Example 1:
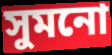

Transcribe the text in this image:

সুমনো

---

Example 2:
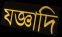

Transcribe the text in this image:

যজ্ঞাদি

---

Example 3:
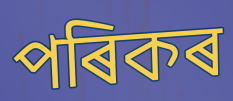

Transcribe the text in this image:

পৰিকৰ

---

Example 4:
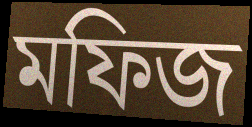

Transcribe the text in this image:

মফিজ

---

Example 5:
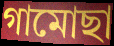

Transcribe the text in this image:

গামোছা